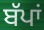
ਬੱਪਾਂ